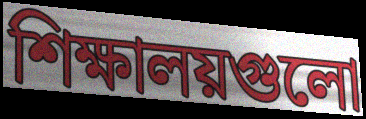
শিক্ষালয়গুলো